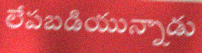
లేపబడియున్నాడు